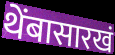
थेंबासारखं